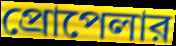
প্রোপেলার